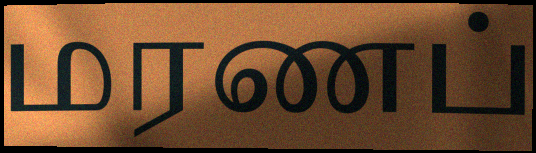
மரணப்